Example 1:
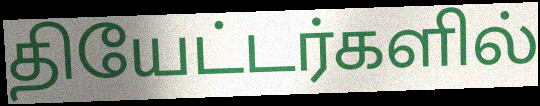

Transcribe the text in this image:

தியேட்டர்களில்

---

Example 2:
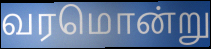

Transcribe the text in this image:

வரமொன்று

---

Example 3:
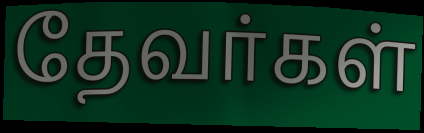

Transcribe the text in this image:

தேவர்கள்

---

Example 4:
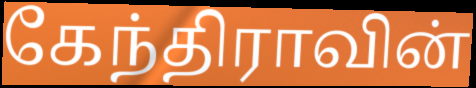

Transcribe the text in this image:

கேந்திராவின்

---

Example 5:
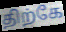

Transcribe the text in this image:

திற்கே